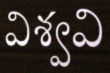
విశ్వవి